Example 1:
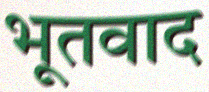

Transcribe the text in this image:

भूतवाद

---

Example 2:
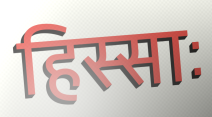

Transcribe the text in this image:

हिस्साः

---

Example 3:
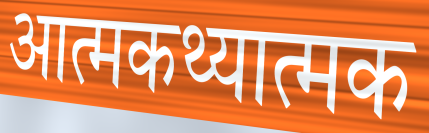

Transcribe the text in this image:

आत्मकथ्यात्मक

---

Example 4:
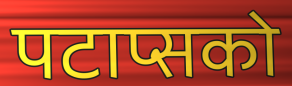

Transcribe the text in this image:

पटाप्सको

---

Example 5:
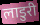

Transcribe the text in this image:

लाडुरी